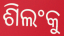
ଶିଲଂକୁ